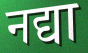
नद्या